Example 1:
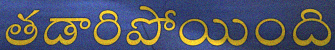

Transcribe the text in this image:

తడారిపోయింది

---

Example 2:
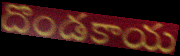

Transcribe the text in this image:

దొండకాయ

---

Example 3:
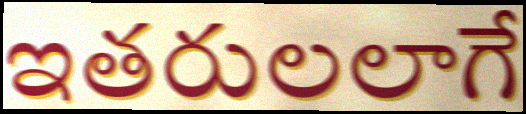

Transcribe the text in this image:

ఇతరులలాగే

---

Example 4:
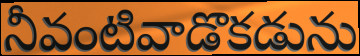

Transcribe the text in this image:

నీవంటివాడొకడును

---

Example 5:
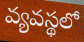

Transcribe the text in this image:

వ్యవస్థలో